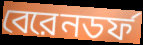
বেরেনডর্ফ